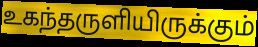
உகந்தருளியிருக்கும்